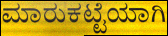
ಮಾರುಕಟ್ಟೆಯಾಗಿ